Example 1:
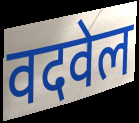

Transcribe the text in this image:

वदवेल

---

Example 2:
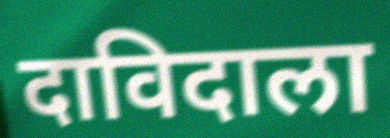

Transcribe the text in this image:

दाविदाला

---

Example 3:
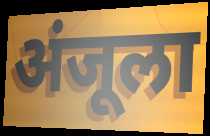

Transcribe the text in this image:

अंजूला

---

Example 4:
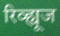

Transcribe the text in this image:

रिव्ह्यूज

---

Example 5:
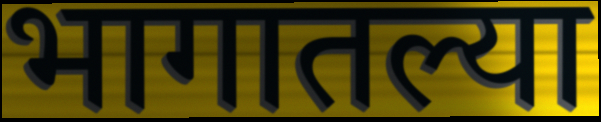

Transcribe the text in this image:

भागातल्या